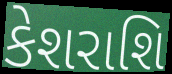
કેશરાશિ